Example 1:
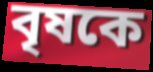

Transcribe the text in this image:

বৃষকে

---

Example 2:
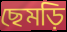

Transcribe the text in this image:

ছেমড়ি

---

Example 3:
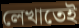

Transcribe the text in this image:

লেখাতেই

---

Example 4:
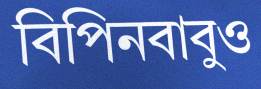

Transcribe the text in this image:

বিপিনবাবুও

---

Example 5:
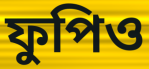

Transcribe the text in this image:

ফুপিও